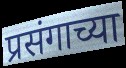
प्रसंगाच्या